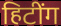
हिटींग